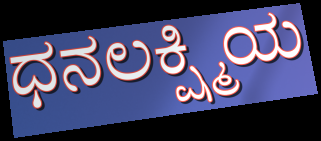
ಧನಲಕ್ಷ್ಮಿಯ